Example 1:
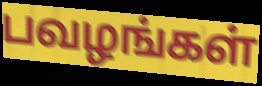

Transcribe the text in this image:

பவழங்கள்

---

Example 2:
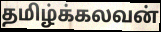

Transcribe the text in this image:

தமிழ்க்கலவன்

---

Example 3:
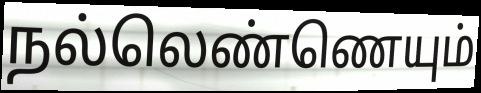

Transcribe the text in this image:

நல்லெண்ணெயும்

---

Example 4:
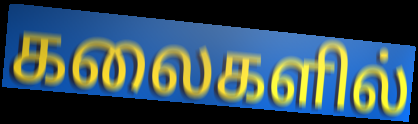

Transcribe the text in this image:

கலைகளில்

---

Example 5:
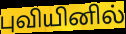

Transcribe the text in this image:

புவியினில்